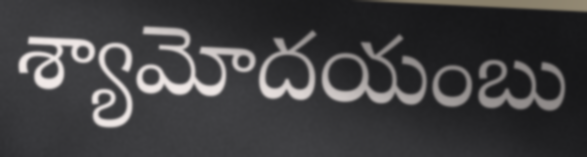
శ్యామోదయంబు